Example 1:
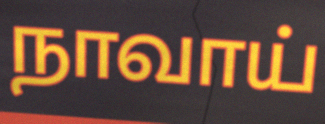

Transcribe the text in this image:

நாவாய்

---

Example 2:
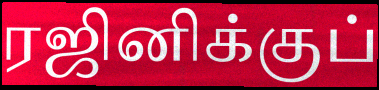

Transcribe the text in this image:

ரஜினிக்குப்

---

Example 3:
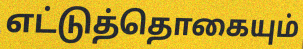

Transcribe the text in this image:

எட்டுத்தொகையும்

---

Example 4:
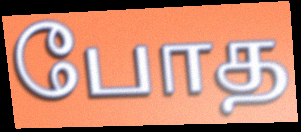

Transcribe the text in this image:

போத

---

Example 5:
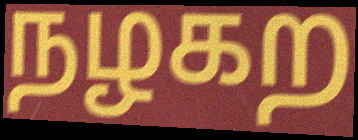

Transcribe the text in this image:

நழகற